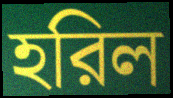
হরিল